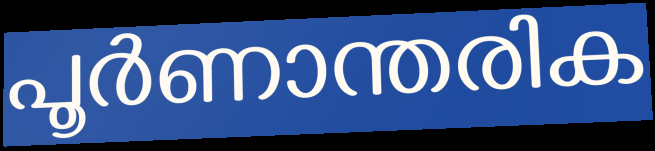
പൂർണാന്തരിക